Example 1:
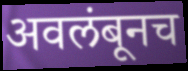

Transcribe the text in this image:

अवलंबूनच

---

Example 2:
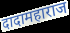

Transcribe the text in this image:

दादामहाराज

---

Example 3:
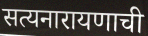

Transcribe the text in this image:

सत्यनारायणाची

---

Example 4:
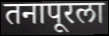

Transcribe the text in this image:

तनापूरला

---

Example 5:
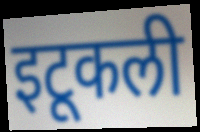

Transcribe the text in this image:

इटूकली